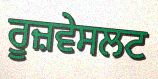
ਰੂਜ਼ਵੇਸਲਟ